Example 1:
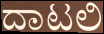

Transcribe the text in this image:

ದಾಟಲಿ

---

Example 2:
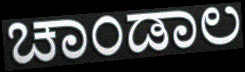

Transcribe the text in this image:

ಚಾಂಡಾಲ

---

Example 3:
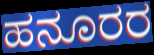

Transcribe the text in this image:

ಹನೂರರ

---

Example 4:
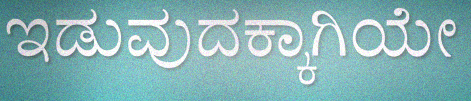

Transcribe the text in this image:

ಇಡುವುದಕ್ಕಾಗಿಯೇ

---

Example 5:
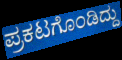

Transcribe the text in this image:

ಪ್ರಕಟಗೊಂಡಿದ್ದು